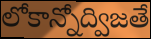
లోకాన్నోద్విజతే